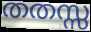
തതസ്സ